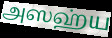
அஸஹ்ய